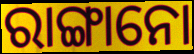
ରାଙ୍ଗାନୋ